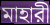
মাহারী